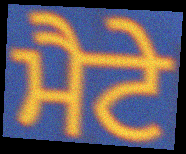
ਮੈਟੇ